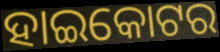
ହାଇକୋଟର